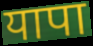
यापा